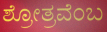
ಶ್ರೋತ್ರವೆಂಬ